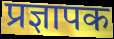
प्रज्ञापक